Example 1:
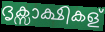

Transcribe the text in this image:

ദൃക്സാക്ഷികള്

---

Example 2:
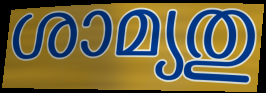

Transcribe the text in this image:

ശാമ്യതു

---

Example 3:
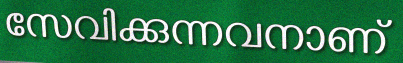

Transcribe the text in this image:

സേവിക്കുന്നവനാണ്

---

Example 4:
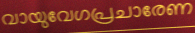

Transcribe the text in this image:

വായുവേഗപ്രചാരേണ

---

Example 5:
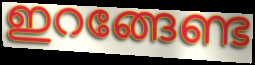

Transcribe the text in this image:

ഇറങ്ങേണ്ട